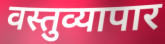
वस्तुव्यापार